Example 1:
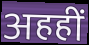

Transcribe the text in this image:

अहहीं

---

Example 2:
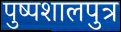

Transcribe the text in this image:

पुष्पशालपुत्र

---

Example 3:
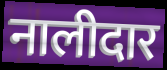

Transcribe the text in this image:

नालीदार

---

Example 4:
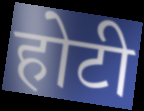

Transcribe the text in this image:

होटी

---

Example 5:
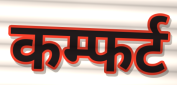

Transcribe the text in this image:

कम्फर्ट